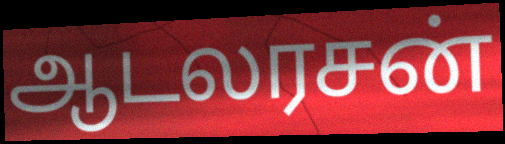
ஆடலரசன்